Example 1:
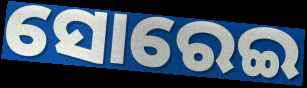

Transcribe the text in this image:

ସୋରେଇ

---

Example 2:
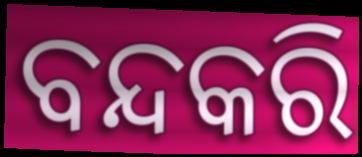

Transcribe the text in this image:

ବନ୍ଦକରି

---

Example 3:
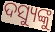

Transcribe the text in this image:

ଦସ୍ୟୁଙ୍କୁ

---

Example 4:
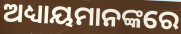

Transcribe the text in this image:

ଅଧ୍ୟାୟମାନଙ୍କରେ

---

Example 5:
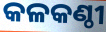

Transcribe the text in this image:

କଳକଣ୍ଠୀ